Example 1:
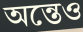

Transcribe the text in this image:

অন্তেও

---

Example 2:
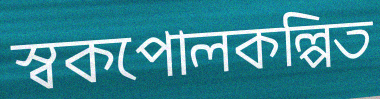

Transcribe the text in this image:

স্বকপোলকল্পিত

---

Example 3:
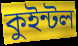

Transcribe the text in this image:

কুইন্টল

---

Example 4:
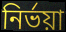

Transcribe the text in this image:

নির্ভয়া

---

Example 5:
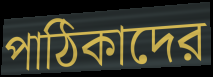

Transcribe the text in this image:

পাঠিকাদের